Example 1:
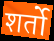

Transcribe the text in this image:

शर्तो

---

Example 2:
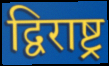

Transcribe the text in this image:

द्विराष्ट्र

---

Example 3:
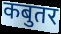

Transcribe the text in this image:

कबुतर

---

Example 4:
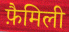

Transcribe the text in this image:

फ़ैमिली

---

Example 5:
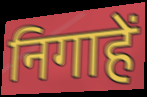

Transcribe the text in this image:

निगाहें